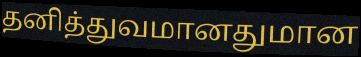
தனித்துவமானதுமான